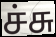
ச்சு